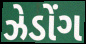
ઝેડોંગ